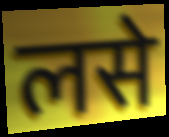
लसे